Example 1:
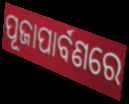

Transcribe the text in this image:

ପୂଜାପାର୍ବଣରେ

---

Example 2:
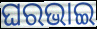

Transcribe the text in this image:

ଘରଭାଇ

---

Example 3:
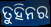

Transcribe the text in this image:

ତୁହିନର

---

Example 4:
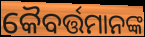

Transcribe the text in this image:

କୈବର୍ତ୍ତମାନଙ୍କ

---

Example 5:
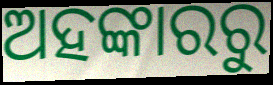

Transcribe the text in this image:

ଅହଙ୍କାରରୁ